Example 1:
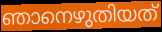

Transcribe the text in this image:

ഞാനെഴുതിയത്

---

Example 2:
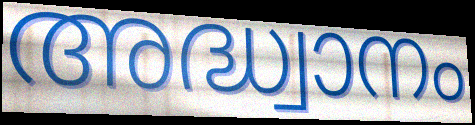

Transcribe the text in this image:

അദ്ധ്വാനം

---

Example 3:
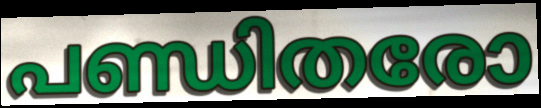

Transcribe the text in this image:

പണ്ഡിതരോ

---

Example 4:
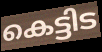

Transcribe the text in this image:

കെട്ടിട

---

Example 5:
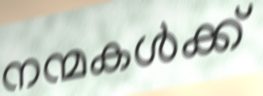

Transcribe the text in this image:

നന്മകൾക്ക്